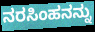
ನರಸಿಂಹನನ್ನು